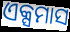
ଏକ୍ସମାସ